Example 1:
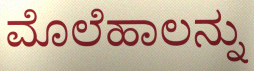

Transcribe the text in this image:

ಮೊಲೆಹಾಲನ್ನು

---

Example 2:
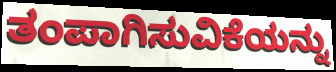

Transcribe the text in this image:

ತಂಪಾಗಿಸುವಿಕೆಯನ್ನು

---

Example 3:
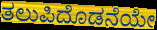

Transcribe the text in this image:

ತಲುಪಿದೊಡನೆಯೇ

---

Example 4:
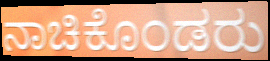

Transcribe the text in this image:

ನಾಚಿಕೊಂಡರು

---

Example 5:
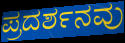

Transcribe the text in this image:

ಪ್ರದರ್ಶನವು